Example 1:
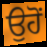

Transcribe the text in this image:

ਉਹੋਂ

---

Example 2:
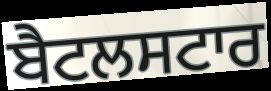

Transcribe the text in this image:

ਬੈਟਲਸਟਾਰ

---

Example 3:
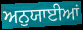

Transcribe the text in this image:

ਅਨੁਯਾਈਆਂ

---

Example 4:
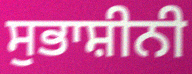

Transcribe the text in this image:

ਸੁਭਾਸ਼ੀਨੀ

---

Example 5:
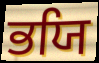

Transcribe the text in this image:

ਭਯਿ